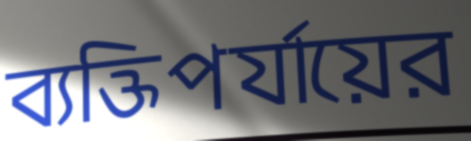
ব্যক্তিপর্যায়ের